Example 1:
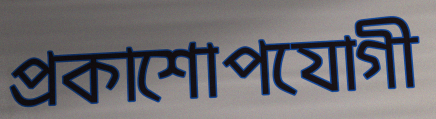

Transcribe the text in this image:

প্রকাশোপযোগী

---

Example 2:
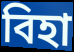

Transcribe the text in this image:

বিহা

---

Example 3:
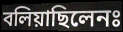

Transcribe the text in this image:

বলিয়াছিলেনঃ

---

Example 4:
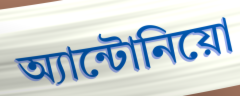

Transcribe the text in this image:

অ্যান্টোনিয়ো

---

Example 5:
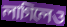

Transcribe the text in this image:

লাগিলেও